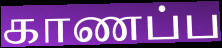
காணப்ப